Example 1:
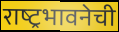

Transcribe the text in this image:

राष्ट्रभावनेची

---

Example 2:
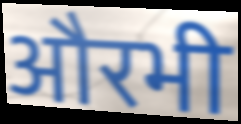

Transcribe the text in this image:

औरभी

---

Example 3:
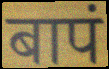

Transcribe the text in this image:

बापं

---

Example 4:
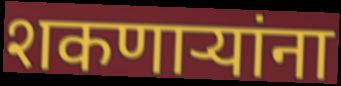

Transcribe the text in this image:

शकणार्‍यांना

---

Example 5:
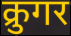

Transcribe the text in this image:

क्रुगर